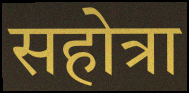
सहोत्रा